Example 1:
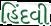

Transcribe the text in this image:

હિંદવી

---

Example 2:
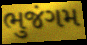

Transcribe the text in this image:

ભુજંગમ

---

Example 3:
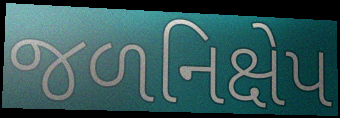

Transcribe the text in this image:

જળનિક્ષેપ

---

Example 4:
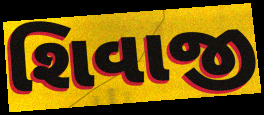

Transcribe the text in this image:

શિવાજી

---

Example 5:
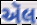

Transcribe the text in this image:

ઍલ